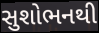
સુશોભનથી